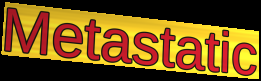
Metastatic